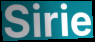
Sirie